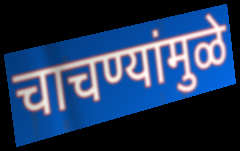
चाचण्यांमुळे